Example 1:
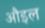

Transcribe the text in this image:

औइल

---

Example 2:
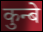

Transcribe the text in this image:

कुन्बे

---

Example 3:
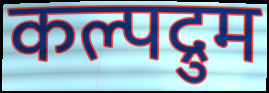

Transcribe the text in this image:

कल्पद्रुम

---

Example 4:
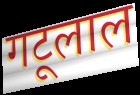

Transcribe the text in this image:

गटूलाल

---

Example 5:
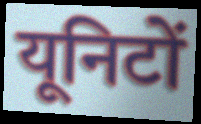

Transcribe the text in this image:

यूनिटों